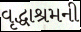
વૃદ્ધાશ્રમની